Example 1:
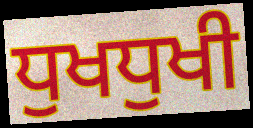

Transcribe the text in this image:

ਧੁਖਧੁਖੀ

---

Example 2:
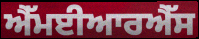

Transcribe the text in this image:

ਐੱਮਈਆਰਐੱਸ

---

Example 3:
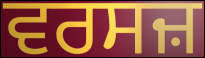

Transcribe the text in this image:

ਵਰਸਜ਼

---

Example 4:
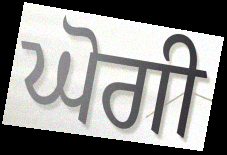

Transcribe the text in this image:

ਘੋਗੀ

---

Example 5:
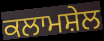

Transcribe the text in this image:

ਕਲਾਮਸ਼ੇਲ